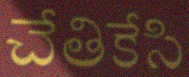
చేతికేసి